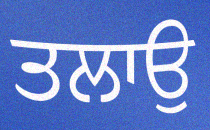
ਤਲਾਉ